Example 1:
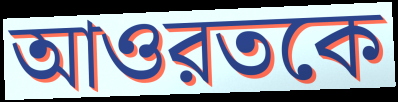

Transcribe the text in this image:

আওরতকে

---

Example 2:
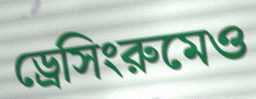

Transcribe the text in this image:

ড্রেসিংরুমেও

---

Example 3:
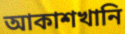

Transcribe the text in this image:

আকাশখানি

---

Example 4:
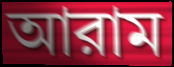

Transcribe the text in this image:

আরাম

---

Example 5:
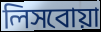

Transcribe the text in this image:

লিসবোয়া